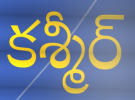
కశ్మీర్